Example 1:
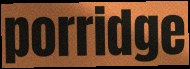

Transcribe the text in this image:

porridge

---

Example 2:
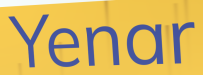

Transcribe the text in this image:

Yenar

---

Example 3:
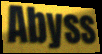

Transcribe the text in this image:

Abyss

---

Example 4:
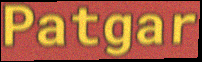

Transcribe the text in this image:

Patgar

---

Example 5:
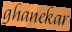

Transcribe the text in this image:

ghanekar